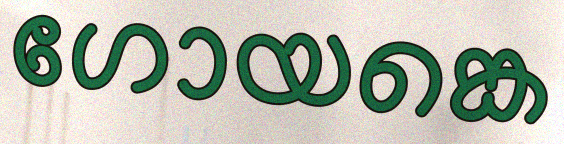
ഗോയങ്കെ